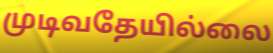
முடிவதேயில்லை